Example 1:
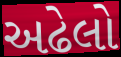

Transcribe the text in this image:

અઢેલો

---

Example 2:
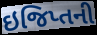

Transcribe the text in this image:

ઇજિપ્તની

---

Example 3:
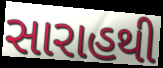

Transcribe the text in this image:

સારાહથી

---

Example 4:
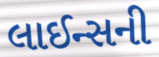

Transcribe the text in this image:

લાઈન્સની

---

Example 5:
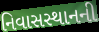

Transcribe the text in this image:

નિવાસસ્થાનની